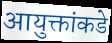
आयुक्तांकडे